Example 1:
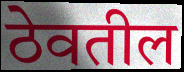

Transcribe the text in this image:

ठेवतील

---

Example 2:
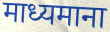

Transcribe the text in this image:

माध्यमाना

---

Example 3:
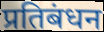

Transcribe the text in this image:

प्रतिबंधन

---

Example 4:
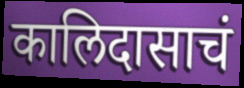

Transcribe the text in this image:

कालिदासाचं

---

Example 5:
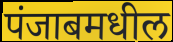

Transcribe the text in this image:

पंजाबमधील